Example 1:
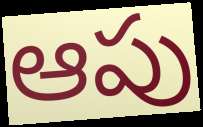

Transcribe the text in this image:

ఆపు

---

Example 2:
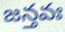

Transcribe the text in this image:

జన్తవః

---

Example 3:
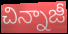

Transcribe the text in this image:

చిన్నాజీ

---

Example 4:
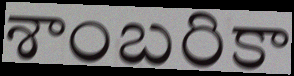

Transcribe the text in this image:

శాంబరికా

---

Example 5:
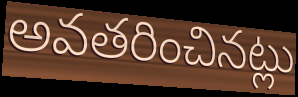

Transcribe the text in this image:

అవతరించినట్లు